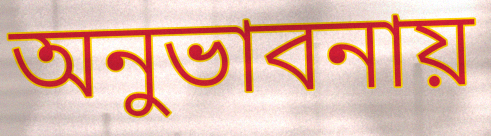
অনুভাবনায়